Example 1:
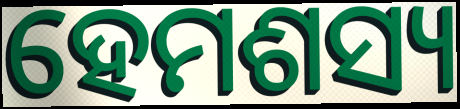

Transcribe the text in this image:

ହେମଶସ୍ୟ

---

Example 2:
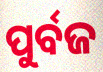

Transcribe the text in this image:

ପୁର୍ବଜ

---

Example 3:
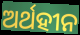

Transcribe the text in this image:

ଅର୍ଥହୀନ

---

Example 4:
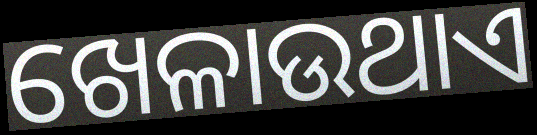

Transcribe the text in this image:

ଖେଳାଉଥାଏ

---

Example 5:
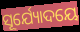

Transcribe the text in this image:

ସୂର୍ଯ୍ୟୋଦୟେ